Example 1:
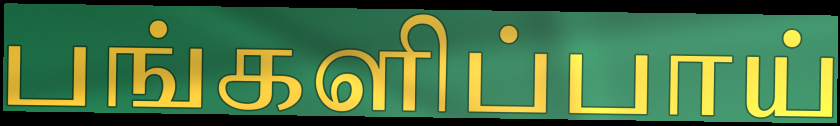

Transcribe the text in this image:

பங்களிப்பாய்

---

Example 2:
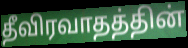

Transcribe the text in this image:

தீவிரவாதத்தின்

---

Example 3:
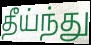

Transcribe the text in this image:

தீய்ந்து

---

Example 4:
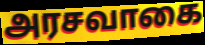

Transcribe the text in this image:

அரசவாகை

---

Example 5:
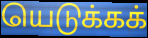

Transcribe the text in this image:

யெடுக்கக்